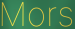
Mors